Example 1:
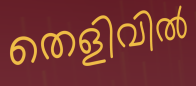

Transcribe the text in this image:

തെളിവിൽ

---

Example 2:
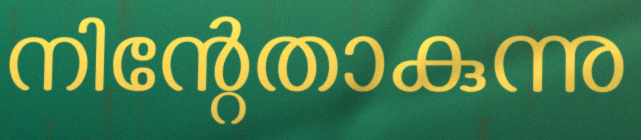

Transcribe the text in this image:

നിന്റേതാകുന്നു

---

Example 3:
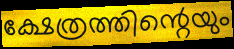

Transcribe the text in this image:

ക്ഷേത്രത്തിന്റെയും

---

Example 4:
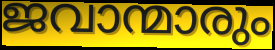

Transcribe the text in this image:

ജവാന്മാരും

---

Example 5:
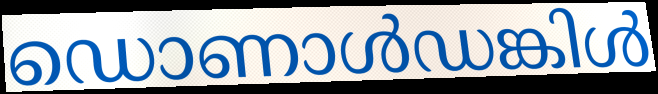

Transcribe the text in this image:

ഡൊണാൾഡങ്കിൾ